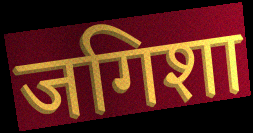
जगिशा